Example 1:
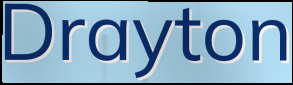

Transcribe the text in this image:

Drayton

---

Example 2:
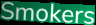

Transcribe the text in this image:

Smokers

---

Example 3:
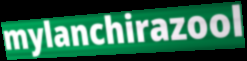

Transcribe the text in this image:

mylanchirazool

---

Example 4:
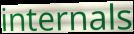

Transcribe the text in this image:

internals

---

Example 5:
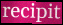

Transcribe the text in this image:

recipit